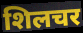
शिलचर